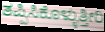
ತಪ್ಪಿಸಿಕೊಳ್ಳುತ್ತೀರಿ